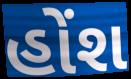
હોંશ